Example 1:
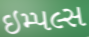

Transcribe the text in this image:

ઇમ્પલ્સ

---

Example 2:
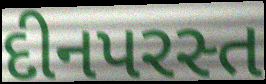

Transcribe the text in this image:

દીનપરસ્ત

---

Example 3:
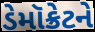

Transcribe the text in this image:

ડેમૉક્રેટને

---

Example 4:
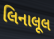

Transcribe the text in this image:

લિનાલૂલ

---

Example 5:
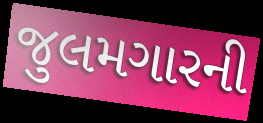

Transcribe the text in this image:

જુલમગારની